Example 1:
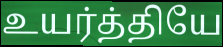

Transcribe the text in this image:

உயர்த்தியே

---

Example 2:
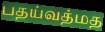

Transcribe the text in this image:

பதய்வத்மத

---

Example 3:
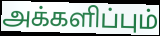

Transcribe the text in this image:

அக்களிப்பும்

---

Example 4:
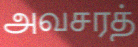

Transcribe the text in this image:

அவசரத்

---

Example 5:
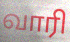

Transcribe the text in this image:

வாரி